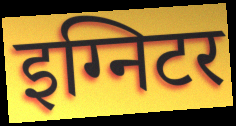
इग्निटर